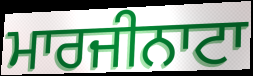
ਮਾਰਜੀਨਾਟਾ